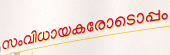
സംവിധായകരോടൊപ്പം